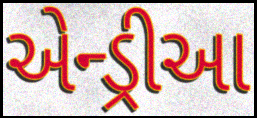
એન્ડ્રીઆ